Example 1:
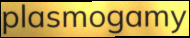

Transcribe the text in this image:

plasmogamy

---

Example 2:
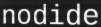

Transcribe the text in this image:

nodide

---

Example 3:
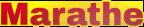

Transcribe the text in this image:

Marathe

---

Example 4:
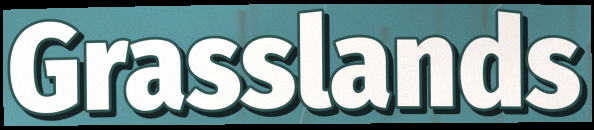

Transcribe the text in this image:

Grasslands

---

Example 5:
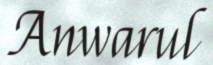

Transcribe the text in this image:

Anwarul